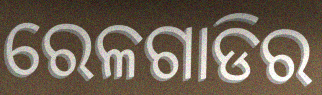
ରେଳଗାଡିର